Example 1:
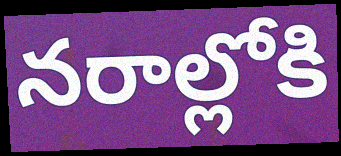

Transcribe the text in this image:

నరాల్లోకి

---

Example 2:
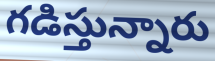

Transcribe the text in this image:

గడిస్తున్నారు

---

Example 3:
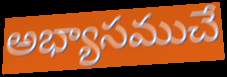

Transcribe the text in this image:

అభ్యాసముచే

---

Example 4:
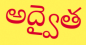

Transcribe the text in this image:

అద్వైత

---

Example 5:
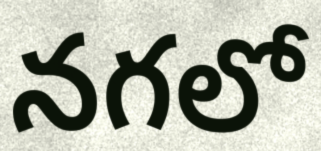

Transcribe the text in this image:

నగలో